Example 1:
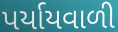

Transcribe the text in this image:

પર્યાયવાળી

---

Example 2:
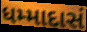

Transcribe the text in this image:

ધમ્માદાસં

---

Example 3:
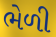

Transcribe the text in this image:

ભેળી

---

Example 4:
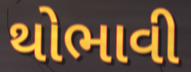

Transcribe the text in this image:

થોભાવી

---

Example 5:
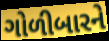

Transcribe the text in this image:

ગોળીબારને